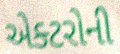
એક્ટરોની